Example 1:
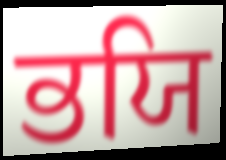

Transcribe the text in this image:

ਭਯਿ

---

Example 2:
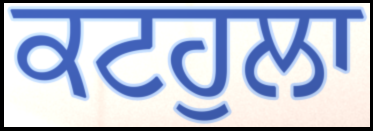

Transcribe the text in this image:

ਕਟਹੁਲਾ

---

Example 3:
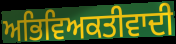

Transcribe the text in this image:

ਅਭਿਵਿਅਕਤੀਵਾਦੀ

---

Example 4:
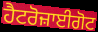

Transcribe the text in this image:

ਹੈਟਰੋਜ਼ਾਈਗੋਟ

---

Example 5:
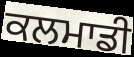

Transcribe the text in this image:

ਕਲਮਾਡੀ